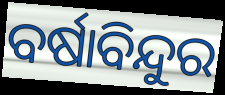
ବର୍ଷାବିନ୍ଦୁର